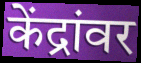
केंद्रांवर